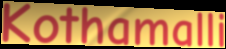
Kothamalli